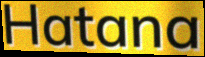
Hatana